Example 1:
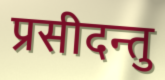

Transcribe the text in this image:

प्रसीदन्तु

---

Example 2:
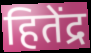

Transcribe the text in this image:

हितेंद्र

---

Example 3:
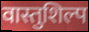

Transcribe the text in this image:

वास्तुशिल्प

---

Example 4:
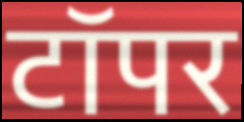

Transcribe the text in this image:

टॉपर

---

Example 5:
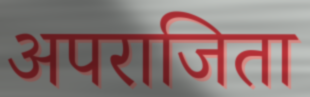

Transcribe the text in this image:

अपराजिता